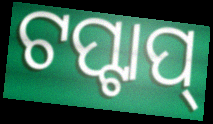
ଟପ୍ଟାପ୍